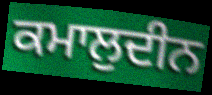
ਕਮਾਲੁਦੀਨ